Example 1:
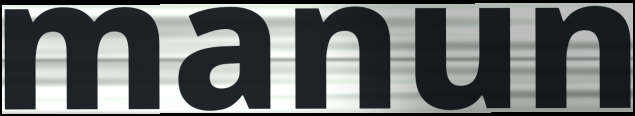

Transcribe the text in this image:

manun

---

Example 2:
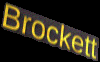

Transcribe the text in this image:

Brockett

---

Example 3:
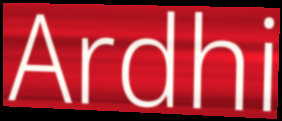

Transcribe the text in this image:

Ardhi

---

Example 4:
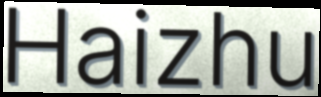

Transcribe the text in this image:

Haizhu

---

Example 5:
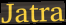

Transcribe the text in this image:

Jatra